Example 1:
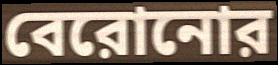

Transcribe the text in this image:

বেরোনোর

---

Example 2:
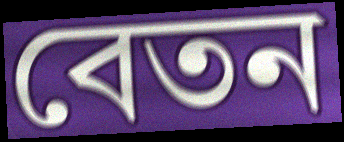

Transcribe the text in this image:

বেতন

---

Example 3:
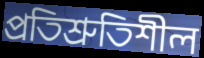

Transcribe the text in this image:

প্রতিশ্রুতিশীল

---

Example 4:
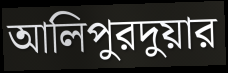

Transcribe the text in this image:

আলিপুরদুয়ার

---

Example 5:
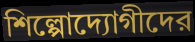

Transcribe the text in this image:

শিল্পোদ্যোগীদের